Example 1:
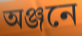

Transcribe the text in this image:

অঞ্জনে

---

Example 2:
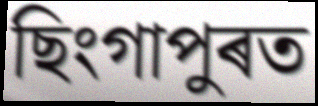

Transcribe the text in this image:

ছিংগাপুৰত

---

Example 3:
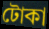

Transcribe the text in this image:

টোকা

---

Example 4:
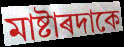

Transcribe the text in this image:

মাষ্টাৰদাকে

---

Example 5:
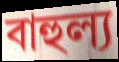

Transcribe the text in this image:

বাহুল্য